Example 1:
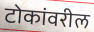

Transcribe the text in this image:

टोकांवरील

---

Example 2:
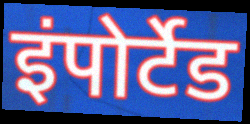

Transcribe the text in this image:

इंपोर्टेड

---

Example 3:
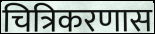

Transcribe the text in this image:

चित्रिकरणास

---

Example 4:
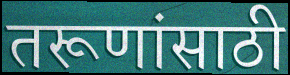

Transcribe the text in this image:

तरूणांसाठी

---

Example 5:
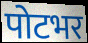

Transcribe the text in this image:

पोटभर